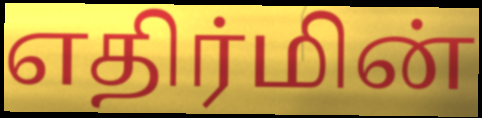
எதிர்மின்